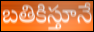
బతికిస్తూనే